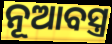
ନୂଆବସ୍ତ୍ର